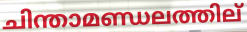
ചിന്താമണ്ഡലത്തില്